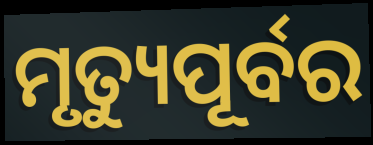
ମୃତ୍ୟୁପୂର୍ବର